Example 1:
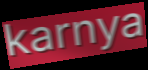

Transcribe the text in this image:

karnya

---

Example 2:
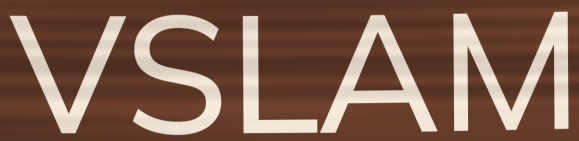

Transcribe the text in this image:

VSLAM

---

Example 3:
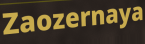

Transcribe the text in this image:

Zaozernaya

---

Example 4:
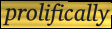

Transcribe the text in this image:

prolifically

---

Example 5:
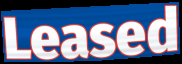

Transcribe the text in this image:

Leased